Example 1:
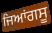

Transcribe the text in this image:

ਜਿਆਂਗਸੂ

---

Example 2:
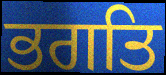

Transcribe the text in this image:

ਭਗਤਿ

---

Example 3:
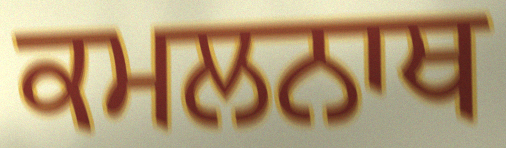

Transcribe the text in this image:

ਕਮਲਨਾਥ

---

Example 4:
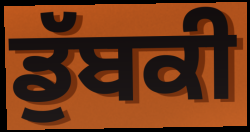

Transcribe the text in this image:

ਡੁੱਬਕੀ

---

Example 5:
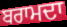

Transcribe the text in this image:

ਬਰਾਮਦਾ